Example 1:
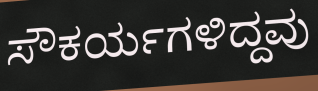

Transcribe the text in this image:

ಸೌಕರ್ಯಗಳಿದ್ದವು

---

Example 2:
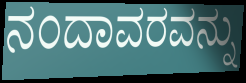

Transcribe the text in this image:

ನಂದಾವರವನ್ನು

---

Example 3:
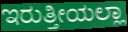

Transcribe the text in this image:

ಇರುತ್ತೀಯಲ್ಲಾ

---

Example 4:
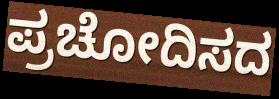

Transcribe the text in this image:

ಪ್ರಚೋದಿಸದ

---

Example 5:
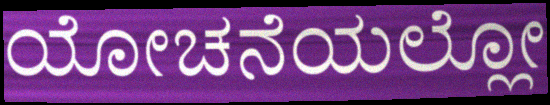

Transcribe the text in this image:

ಯೋಚನೆಯಲ್ಲೋ